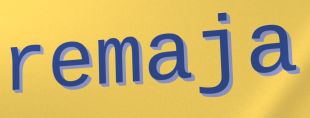
remaja